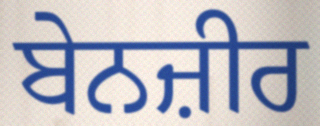
ਬੇਨਜ਼ੀਰ